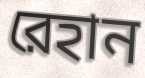
রেহান